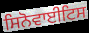
ਸਿਨੋਵਾਈਟਿਸ